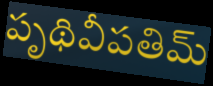
పృథివీపతిమ్